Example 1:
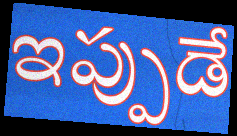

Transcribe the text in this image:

ఇప్పుడే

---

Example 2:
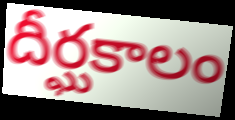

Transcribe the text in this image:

దీర్ఘకాలం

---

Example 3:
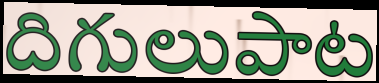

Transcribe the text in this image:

దిగులుపాట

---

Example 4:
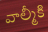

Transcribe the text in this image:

వాల్మీకి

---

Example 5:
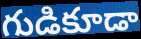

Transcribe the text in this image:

గుడికూడా